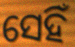
ସେହିଁ